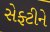
સેફ્ટીને